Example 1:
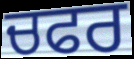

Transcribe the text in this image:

ਚਫਰ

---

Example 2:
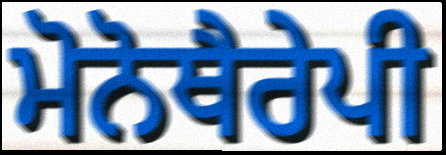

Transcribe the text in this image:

ਮੋਨੋਥੈਰੇਪੀ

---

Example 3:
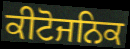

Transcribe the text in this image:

ਕੀਟੋਜਨਿਕ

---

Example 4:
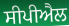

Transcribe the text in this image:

ਸੀਪੀਐਲ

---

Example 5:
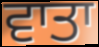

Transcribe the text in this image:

ਵਾਤਾ